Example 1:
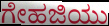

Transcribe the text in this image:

ಗೇಹಜಿಯು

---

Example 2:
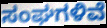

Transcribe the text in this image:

ಸಂಘಗಳಿವೆ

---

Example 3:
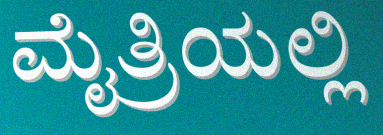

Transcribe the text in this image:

ಮೈತ್ರಿಯಲ್ಲಿ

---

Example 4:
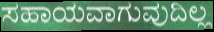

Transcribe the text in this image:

ಸಹಾಯವಾಗುವುದಿಲ್ಲ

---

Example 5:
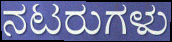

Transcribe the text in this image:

ನಟರುಗಳು